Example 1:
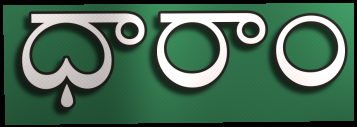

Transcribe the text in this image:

ధారాం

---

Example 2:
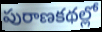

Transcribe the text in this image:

పురాణకథల్లో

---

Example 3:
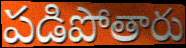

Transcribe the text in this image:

పడిపోతారు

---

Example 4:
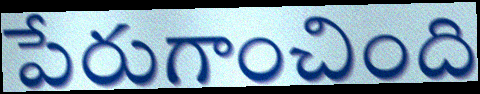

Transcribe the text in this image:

పేరుగాంచింది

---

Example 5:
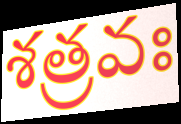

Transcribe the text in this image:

శత్రవః